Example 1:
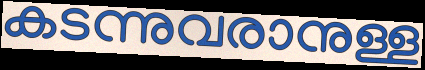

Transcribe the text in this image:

കടന്നുവരാനുള്ള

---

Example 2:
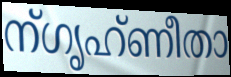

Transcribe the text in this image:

ന്ഗൃഹ്ണീതാ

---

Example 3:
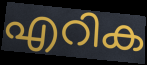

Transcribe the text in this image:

എറിക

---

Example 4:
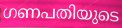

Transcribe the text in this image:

ഗണപതിയുടെ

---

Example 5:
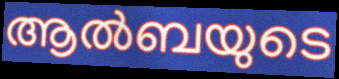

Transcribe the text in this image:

ആൽബയുടെ